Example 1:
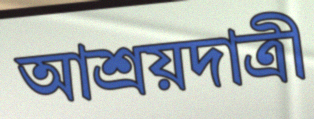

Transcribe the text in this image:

আশ্রয়দাত্রী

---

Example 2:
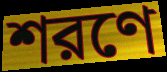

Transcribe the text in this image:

শরণে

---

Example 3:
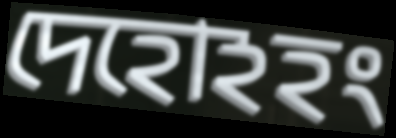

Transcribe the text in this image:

দেহোঽহং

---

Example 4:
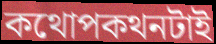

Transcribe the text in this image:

কথোপকথনটাই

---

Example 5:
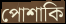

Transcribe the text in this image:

পোশাকি